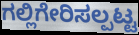
ಗಲ್ಲಿಗೇರಿಸಲ್ಪಟ್ಟ